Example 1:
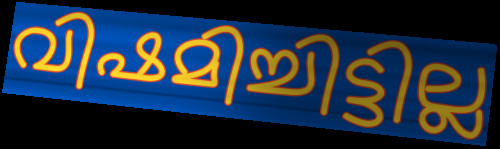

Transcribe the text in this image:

വിഷമിച്ചിട്ടില്ല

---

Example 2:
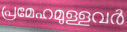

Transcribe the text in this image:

പ്രമേഹമുള്ളവർ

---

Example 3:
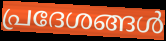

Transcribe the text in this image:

പ്രദേശങ്ങൾ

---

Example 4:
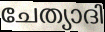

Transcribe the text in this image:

ചേത്യാദി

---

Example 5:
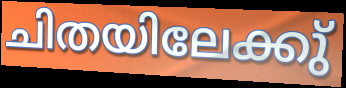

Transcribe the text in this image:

ചിതയിലേക്കു്